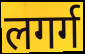
लगर्ग